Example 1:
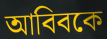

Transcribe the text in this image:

আবিবকে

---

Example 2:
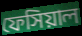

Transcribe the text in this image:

ফেসিয়াল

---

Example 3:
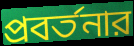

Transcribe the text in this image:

প্রবর্তনার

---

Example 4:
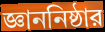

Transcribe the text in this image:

জ্ঞাননিষ্ঠার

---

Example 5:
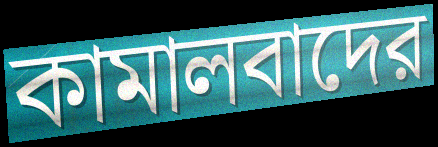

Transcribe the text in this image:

কামালবাদের